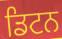
ਡਿਟਨ